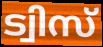
ട്വിസ്